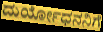
ದುರ್ಯೋಧನನಿಗೆ